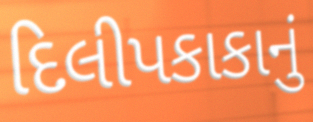
દિલીપકાકાનું